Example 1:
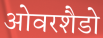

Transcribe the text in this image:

ओवरशैडो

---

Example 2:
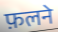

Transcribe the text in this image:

फ़लने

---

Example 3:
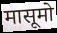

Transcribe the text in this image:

मासूमो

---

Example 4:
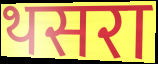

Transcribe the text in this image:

थसरा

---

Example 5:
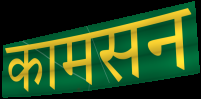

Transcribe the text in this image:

कामसन